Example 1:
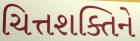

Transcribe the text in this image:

ચિત્તશક્તિને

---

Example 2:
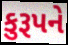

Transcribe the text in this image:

કુરૂપને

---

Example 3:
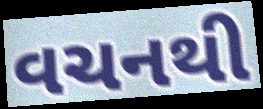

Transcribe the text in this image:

વચનથી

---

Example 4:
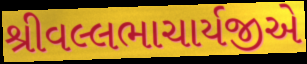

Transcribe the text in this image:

શ્રીવલ્લભાચાર્યજીએ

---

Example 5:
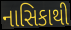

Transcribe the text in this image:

નાસિકાથી